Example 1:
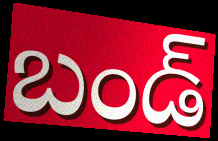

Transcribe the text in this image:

బండ్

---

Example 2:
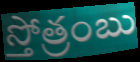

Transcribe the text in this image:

స్తోత్రంబు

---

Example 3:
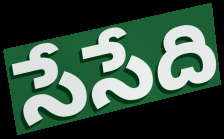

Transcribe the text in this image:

సేసేది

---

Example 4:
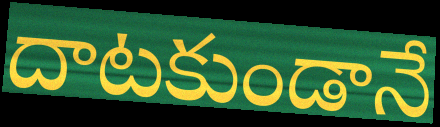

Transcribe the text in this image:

దాటకుండానే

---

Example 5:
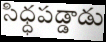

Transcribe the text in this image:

సిధ్ధపడ్డాడు